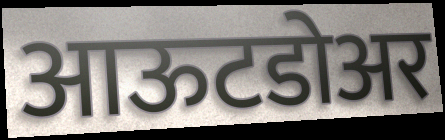
आऊटडोअर